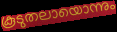
കൂടുതലായൊന്നും